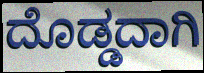
ದೊಡ್ಡದಾಗಿ